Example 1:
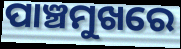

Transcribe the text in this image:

ପାଞ୍ଚମୁଖରେ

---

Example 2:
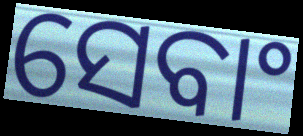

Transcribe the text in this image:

ସେବାଂ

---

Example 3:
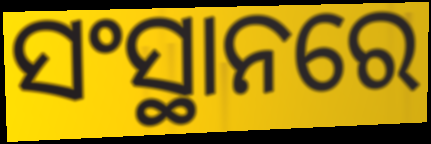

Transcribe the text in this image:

ସଂସ୍ଥାନରେ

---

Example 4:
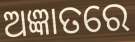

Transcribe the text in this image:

ଅଜ୍ଞାତରେ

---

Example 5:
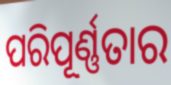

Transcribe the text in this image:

ପରିପୂର୍ଣ୍ଣତାର